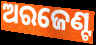
ଅରଜେଣ୍ଟ